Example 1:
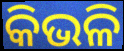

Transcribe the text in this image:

କିଭଳି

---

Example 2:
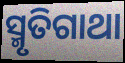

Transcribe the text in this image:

ସ୍ମୃତିଗାଥା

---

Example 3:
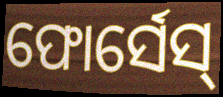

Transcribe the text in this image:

ଫୋର୍ସେସ୍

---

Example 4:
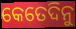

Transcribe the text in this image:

କେତେଦିନୁ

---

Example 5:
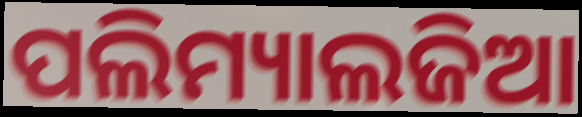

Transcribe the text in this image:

ପଲିମ୍ୟାଲଜିଆ